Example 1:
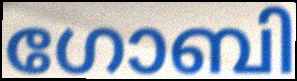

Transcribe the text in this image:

ഗോബി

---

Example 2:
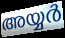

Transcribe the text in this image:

അയ്യർ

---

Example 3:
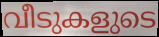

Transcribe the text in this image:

വീടുകളുടെ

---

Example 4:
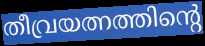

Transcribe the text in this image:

തീവ്രയത്നത്തിന്റെ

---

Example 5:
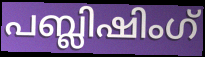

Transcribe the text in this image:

പബ്ലിഷിംഗ്